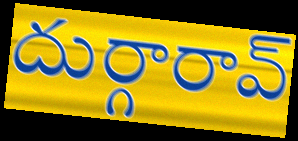
దుర్గారావ్